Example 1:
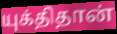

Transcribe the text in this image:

யுக்திதான்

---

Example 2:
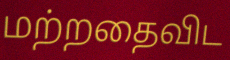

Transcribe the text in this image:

மற்றதைவிட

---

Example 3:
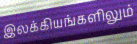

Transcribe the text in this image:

இலக்கியங்களிலும்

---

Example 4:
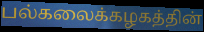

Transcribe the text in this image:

பல்கலைக்கழகத்தின்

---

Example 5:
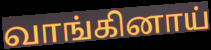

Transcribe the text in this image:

வாங்கினாய்